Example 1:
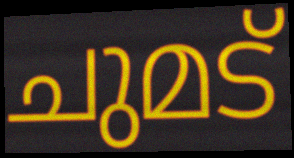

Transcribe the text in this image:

ചുമട്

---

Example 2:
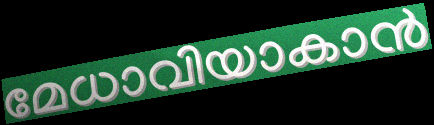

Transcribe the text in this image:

മേധാവിയാകാൻ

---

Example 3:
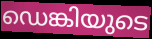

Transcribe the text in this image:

ഡെങ്കിയുടെ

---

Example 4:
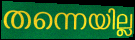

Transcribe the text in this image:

തന്നെയില്ല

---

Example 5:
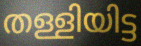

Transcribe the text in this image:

തള്ളിയിട്ട